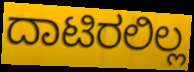
ದಾಟಿರಲಿಲ್ಲ